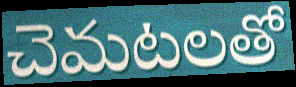
చెమటలతో